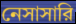
নেসাসারি